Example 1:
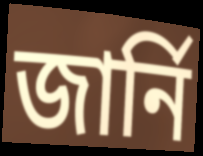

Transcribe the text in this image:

জার্নি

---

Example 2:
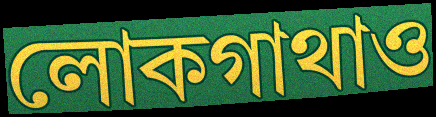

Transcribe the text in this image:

লোকগাথাও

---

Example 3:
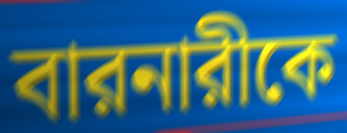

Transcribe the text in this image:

বারনারীকে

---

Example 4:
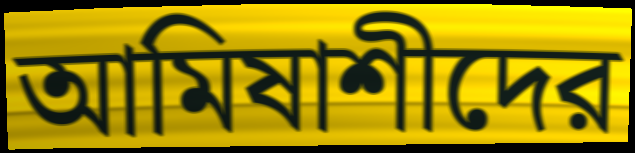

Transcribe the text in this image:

আমিষাশীদের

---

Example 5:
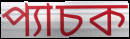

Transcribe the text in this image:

প্যাচক